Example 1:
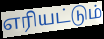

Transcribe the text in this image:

எரியட்டும்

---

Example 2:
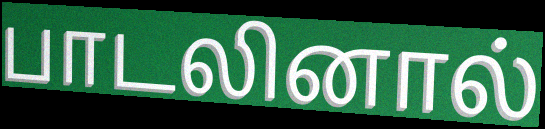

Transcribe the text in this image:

பாடலினால்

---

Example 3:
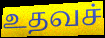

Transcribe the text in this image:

உதவச்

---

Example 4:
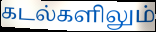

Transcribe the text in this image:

கடல்களிலும்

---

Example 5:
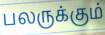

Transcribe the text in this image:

பலருக்கும்